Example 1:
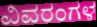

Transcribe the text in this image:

ವಿವರಂಗಳ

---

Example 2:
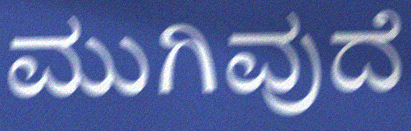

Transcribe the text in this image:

ಮುಗಿವುದೆ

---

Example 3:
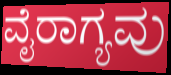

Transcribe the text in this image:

ವೈರಾಗ್ಯವು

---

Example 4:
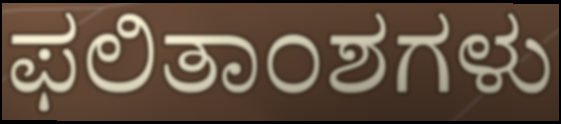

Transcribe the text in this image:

ಫಲಿತಾಂಶಗಳು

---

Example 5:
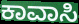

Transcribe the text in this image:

ಕಾವಾಸಿ